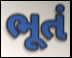
ભૂતં